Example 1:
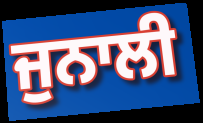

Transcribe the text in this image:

ਜੁਨਾਲੀ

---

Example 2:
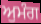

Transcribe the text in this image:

ਅੁਮੰਗ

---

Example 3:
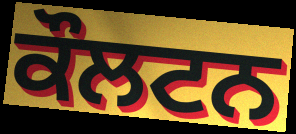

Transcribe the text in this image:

ਕੌਲਟਨ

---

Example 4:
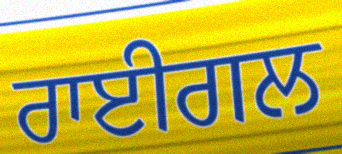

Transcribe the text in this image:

ਰਾਈਗਲ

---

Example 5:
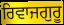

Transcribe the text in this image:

ਰਿਵਾਜਗੁਰੂ